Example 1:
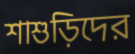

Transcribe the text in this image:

শাশুড়িদের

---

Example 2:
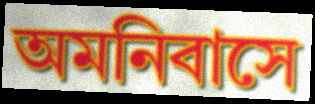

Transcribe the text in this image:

অমনিবাসে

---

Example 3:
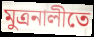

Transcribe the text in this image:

মুত্রনালীতে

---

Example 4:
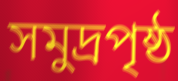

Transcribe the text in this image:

সমুদ্রপৃষ্ঠ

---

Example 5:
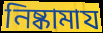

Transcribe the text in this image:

নিষ্কামায